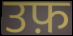
उफ़